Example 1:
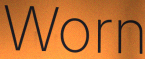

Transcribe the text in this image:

Worn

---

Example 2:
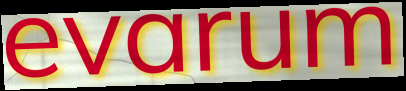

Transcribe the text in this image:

evarum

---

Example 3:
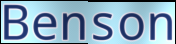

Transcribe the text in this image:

Benson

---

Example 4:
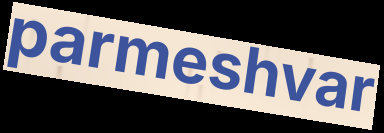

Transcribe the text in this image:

parmeshvar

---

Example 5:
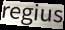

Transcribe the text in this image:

regius